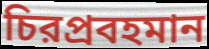
চিরপ্রবহমান